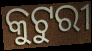
କୁଟୁରୀ